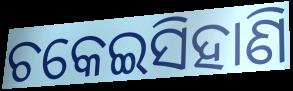
ଚକେଇସିହାଣି